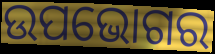
ଉପଭୋଗର